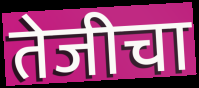
तेजीचा